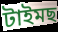
টাইমছ